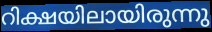
റിക്ഷയിലായിരുന്നു